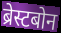
ब्रेस्टबोन